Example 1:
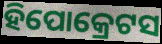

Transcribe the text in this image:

ହିପୋକ୍ରେଟସ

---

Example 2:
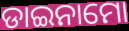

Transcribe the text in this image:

ଡାଇନାମୋ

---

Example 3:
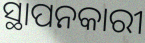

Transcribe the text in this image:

ସ୍ଥାପନକାରୀ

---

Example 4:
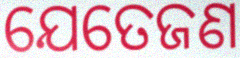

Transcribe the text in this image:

ଯେତେଜଣ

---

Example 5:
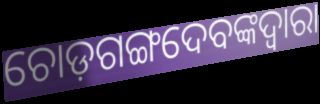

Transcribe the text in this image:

ଚୋଡ଼ଗଙ୍ଗଦେବଙ୍କଦ୍ୱାରା